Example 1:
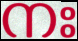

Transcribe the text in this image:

നഃ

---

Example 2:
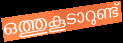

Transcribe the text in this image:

ഒത്തുകൂടാറുണ്ട്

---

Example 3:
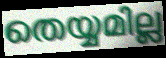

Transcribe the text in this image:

തെയ്യമില്ല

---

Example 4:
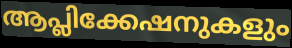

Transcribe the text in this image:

ആപ്ലിക്കേഷനുകളും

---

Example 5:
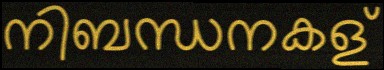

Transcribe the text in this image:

നിബന്ധനകള്